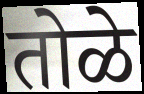
तोळे